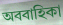
অববাহিকা